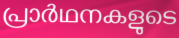
പ്രാർഥനകളുടെ